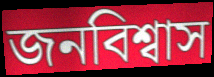
জনবিশ্বাস